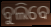
ବୁଲିବେ